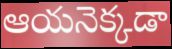
ఆయనెక్కడా